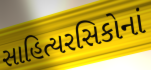
સાહિત્યરસિકોનાં